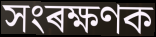
সংৰক্ষণক